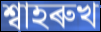
শ্বাহৰুখ